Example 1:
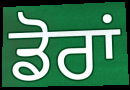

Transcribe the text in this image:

ਡੋਰਾਂ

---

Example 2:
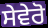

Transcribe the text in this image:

ਸੇਵੇਰੋ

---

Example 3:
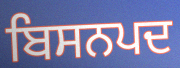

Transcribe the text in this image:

ਬਿਸਨਪਦ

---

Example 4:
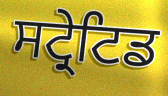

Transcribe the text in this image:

ਸਟ੍ਰੇਟਿਡ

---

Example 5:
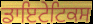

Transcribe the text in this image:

ਡਾਇਟੇਟਿਕਸ